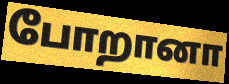
போறானா